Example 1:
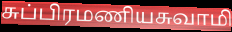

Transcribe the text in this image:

சுப்பிரமணியசுவாமி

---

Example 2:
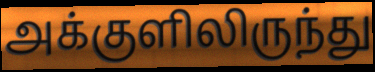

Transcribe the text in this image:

அக்குளிலிருந்து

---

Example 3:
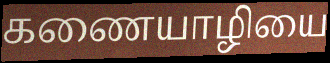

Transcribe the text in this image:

கணையாழியை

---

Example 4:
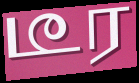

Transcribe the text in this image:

டீர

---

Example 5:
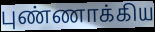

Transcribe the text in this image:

புண்ணாக்கிய